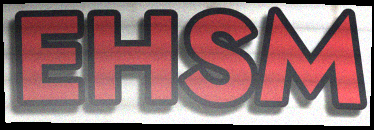
EHSM